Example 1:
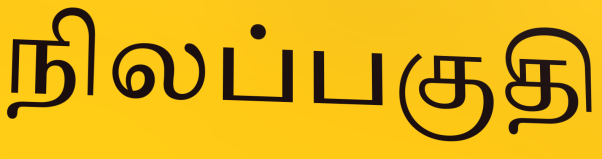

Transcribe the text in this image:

நிலப்பகுதி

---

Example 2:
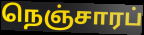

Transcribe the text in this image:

நெஞ்சாரப்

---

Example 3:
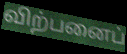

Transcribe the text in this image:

விற்பனைப்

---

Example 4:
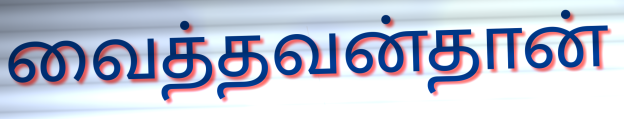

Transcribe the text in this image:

வைத்தவன்தான்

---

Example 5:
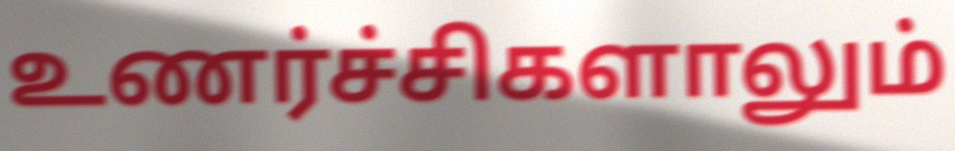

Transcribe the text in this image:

உணர்ச்சிகளாலும்